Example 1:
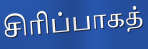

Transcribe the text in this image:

சிரிப்பாகத்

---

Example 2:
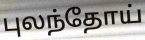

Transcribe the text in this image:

புலந்தோய்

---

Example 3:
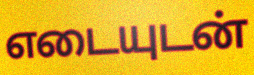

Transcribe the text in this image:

எடையுடன்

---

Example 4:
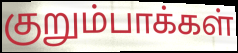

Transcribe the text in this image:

குறும்பாக்கள்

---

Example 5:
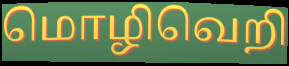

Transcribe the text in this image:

மொழிவெறி